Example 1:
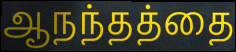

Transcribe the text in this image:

ஆநந்தத்தை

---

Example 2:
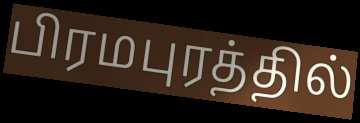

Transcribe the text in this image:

பிரமபுரத்தில்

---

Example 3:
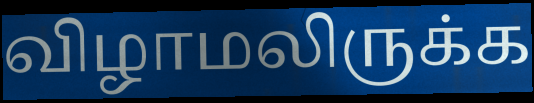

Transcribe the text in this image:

விழாமலிருக்க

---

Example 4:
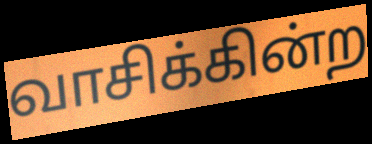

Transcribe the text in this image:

வாசிக்கின்ற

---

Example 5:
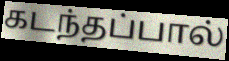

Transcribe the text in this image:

கடந்தப்பால்